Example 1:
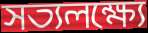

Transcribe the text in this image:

সত্যলক্ষ্যে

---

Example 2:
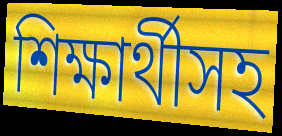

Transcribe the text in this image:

শিক্ষার্থীসহ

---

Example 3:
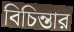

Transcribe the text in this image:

বিচিন্তার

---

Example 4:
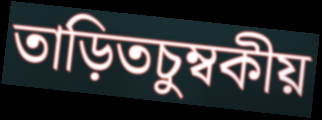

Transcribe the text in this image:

তাড়িতচুম্বকীয়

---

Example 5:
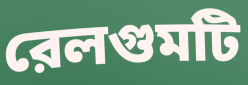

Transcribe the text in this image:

রেলগুমটি